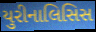
યુરીનાલિસિસ